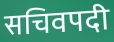
सचिवपदी